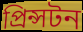
প্ৰিন্সটন